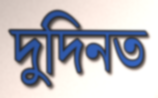
দুদিনত